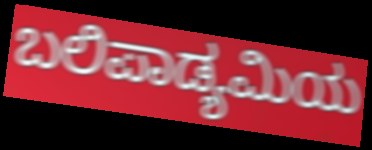
ಬಲಿಪಾಡ್ಯಮಿಯ